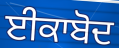
ਈਕਾਬੋਦ